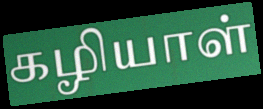
கழியாள்